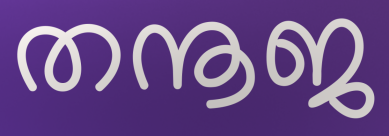
തനൂജ